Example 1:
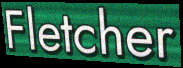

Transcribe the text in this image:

Fletcher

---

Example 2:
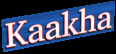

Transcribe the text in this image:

Kaakha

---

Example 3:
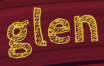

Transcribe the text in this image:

glen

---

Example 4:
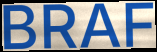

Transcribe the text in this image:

BRAF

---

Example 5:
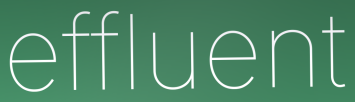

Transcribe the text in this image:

effluent